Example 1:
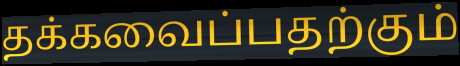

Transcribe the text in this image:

தக்கவைப்பதற்கும்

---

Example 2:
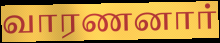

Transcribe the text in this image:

வாரணனார்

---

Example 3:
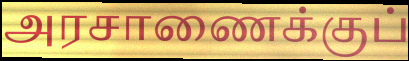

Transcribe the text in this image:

அரசாணைக்குப்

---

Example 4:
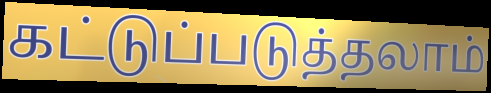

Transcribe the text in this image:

கட்டுப்படுத்தலாம்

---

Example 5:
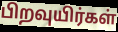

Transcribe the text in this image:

பிறவுயிர்கள்